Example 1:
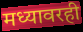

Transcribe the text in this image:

मध्यावरही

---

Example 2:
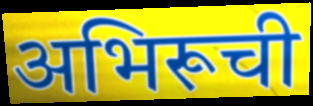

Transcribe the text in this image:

अभिरूची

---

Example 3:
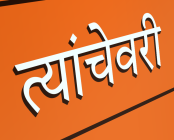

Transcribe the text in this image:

त्यांचेवरी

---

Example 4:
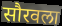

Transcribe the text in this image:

सौरवला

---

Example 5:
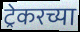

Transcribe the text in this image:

ट्रेकरच्या